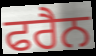
ਫਰੈਨ